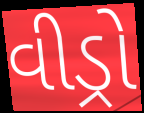
વીડ્રો